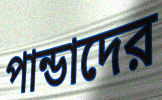
পান্ডাদের